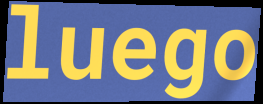
luego